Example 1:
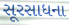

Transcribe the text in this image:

સૂરસાધના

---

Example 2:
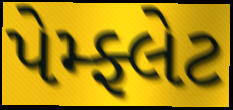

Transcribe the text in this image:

પેમ્ફ્લેટ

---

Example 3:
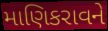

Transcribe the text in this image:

માણિકરાવને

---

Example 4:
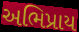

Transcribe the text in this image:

અભિપ્રાય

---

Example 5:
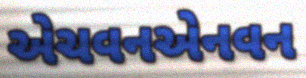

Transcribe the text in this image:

એચવનએનવન